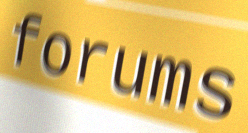
forums